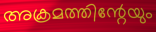
അക്രമത്തിന്റേയും